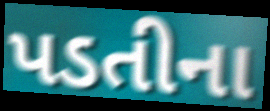
પડતીના